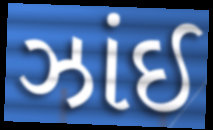
ઝાંઈ